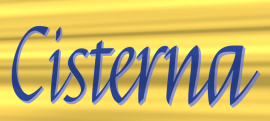
Cisterna